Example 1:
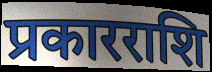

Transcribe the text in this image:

प्रकारराशि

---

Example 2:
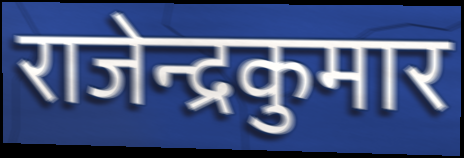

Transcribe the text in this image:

राजेन्द्रकुमार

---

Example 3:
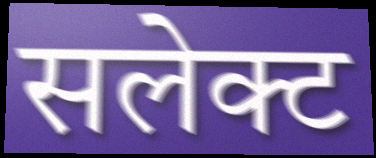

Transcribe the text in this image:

सलेक्ट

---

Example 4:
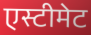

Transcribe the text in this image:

एस्‍टीमेट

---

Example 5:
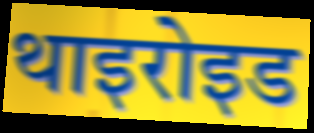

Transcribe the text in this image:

थाइरोइड